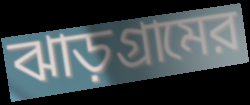
ঝাড়গ্রামের